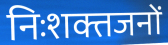
निःशक्तजनों